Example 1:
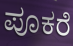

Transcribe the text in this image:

ಪೂಕರೆ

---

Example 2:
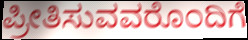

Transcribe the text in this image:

ಪ್ರೀತಿಸುವವರೊಂದಿಗೆ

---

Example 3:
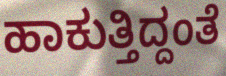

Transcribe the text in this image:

ಹಾಕುತ್ತಿದ್ದಂತೆ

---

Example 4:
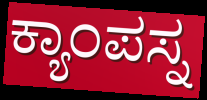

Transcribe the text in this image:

ಕ್ಯಾಂಪಸ್ನ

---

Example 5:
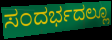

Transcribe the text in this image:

ಸಂದರ್ಭದಲ್ಲೂ